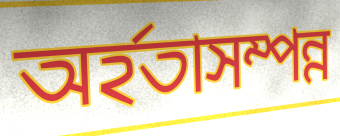
অৰ্হতাসম্পন্ন